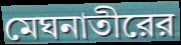
মেঘনাতীরের